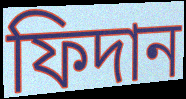
ফিদান